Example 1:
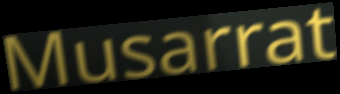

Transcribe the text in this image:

Musarrat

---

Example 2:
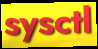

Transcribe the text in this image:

sysctl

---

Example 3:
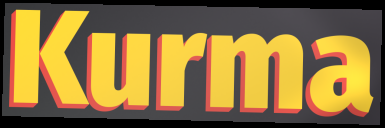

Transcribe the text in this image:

Kurma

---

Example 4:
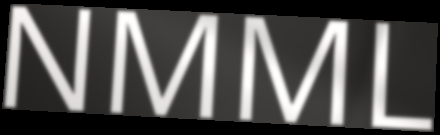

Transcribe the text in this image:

NMML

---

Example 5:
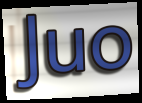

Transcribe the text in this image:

Juo